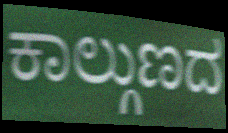
ಕಾಲ್ಗುಣದ